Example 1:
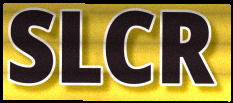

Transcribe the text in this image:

SLCR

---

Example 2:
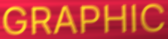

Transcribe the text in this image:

GRAPHIC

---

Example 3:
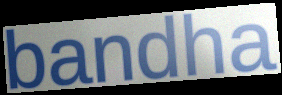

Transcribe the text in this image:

bandha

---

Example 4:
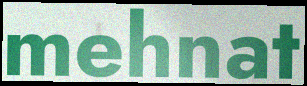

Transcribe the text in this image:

mehnat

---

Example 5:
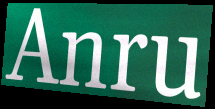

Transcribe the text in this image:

Anru